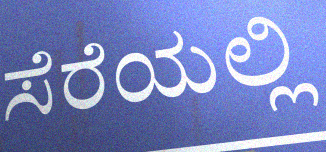
ಸೆರೆಯಲ್ಲಿ